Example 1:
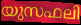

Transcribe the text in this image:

യുസഫലി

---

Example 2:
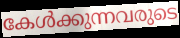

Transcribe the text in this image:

കേൾക്കുന്നവരുടെ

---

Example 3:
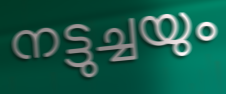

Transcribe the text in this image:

നട്ടുച്ചയും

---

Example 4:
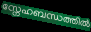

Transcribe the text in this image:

സ്നേഹബന്ധത്തിൽ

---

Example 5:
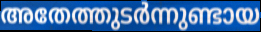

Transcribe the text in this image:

അതേത്തുടർന്നുണ്ടായ